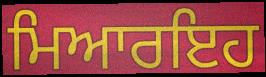
ਮਿਆਰਇਹ